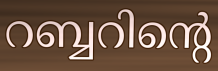
റബ്ബറിന്റെ